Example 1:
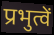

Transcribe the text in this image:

प्रभुत्वें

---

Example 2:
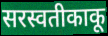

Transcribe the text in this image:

सरस्वतीकाकू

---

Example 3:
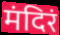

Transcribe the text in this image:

मंदिरं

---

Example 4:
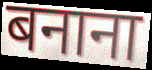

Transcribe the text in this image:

बनाना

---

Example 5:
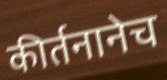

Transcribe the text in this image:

कीर्तनानेच